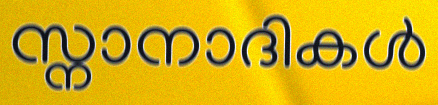
സ്നാനാദികൾ